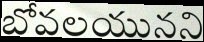
బోవలయునని